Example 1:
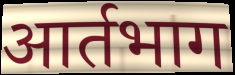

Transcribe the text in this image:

आर्तभाग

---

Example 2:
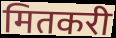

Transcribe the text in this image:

मितकरी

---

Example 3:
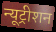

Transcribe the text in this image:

न्यूट्रीशन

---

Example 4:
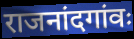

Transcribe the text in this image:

राजनांदगांवः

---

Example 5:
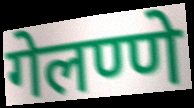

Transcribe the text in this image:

गेलण्णे